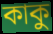
কাকু